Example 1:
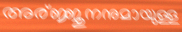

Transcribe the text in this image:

അര്ജ്ജുനനുമായുള്ള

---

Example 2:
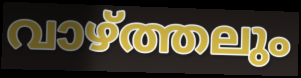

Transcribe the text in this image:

വാഴ്ത്തലും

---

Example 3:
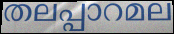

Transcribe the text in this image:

തലപ്പാറമല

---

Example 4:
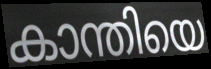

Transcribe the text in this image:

കാന്തിയെ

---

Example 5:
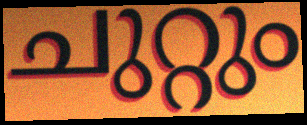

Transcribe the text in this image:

ചുറ്റും